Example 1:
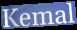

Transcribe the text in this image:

Kemal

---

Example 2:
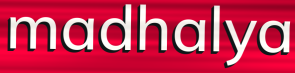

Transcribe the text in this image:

madhalya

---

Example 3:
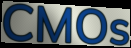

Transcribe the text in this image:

CMOs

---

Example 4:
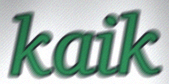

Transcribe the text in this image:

kaik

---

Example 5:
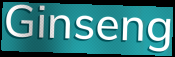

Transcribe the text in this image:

Ginseng